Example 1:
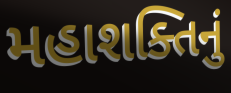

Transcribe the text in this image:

મહાશક્તિનું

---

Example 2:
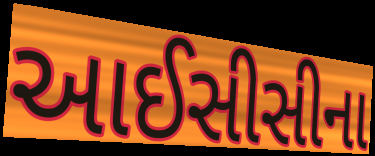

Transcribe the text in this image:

આઈસીસીના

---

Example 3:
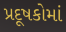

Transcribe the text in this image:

પ્રદૂષકોમાં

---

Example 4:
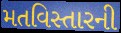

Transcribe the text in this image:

મતવિસ્તારની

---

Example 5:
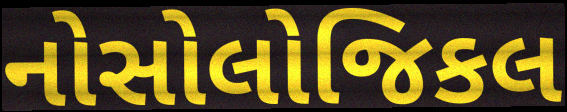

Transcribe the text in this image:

નોસોલોજિકલ